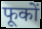
फूकों